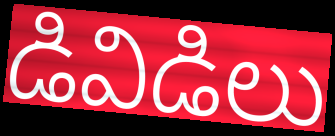
డివిడిలు